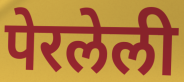
पेरलेली